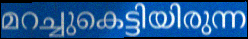
മറച്ചുകെട്ടിയിരുന്ന